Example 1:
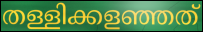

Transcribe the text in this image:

തള്ളിക്കളഞ്ഞത്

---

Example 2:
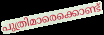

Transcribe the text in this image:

പുത്രിമാരെക്കൊണ്ട്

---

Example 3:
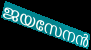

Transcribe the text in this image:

ജയസേനൻ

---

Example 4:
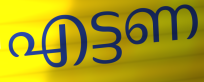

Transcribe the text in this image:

എട്ടണ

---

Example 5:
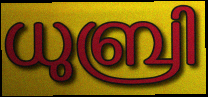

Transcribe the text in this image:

ധുബ്രി